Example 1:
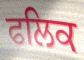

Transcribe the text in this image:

ਫਲਿਕ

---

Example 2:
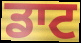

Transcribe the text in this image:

ਡਾਟ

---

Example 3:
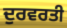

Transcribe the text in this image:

ਦੁਰਵਰਤੀ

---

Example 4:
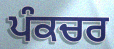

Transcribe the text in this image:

ਪੰਕਚਰ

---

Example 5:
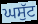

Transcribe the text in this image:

ਘਸੁੱਟ